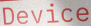
Device